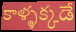
కాళ్ళక్కడే